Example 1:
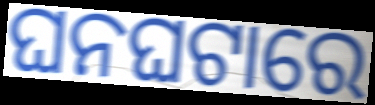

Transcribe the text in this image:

ଘନଘଟାରେ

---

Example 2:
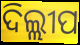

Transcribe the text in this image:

ଦିଲ୍ଲୀପ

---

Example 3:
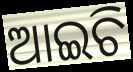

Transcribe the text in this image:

ଆଇଚି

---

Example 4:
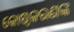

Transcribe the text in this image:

କୋଷ୍ଠକରଣଙ୍କ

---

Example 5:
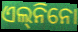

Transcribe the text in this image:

ଏଲ୍‌ନିନୋ